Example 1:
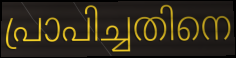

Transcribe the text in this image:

പ്രാപിച്ചതിനെ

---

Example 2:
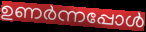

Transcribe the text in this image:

ഉണർന്നപ്പോൾ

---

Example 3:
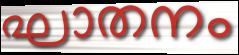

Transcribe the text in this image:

ഘാതനം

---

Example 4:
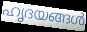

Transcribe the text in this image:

ഹൃദയങ്ങൾ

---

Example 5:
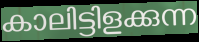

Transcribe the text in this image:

കാലിട്ടിളക്കുന്ന